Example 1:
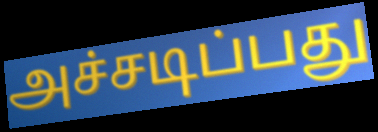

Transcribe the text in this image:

அச்சடிப்பது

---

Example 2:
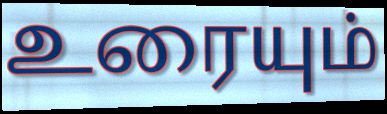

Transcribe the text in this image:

உரையும்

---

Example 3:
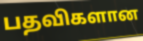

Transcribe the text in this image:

பதவிகளான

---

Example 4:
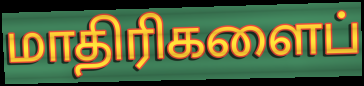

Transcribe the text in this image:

மாதிரிகளைப்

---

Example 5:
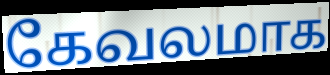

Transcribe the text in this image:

கேவலமாக